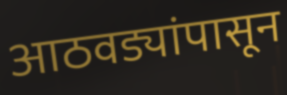
आठवड्यांपासून